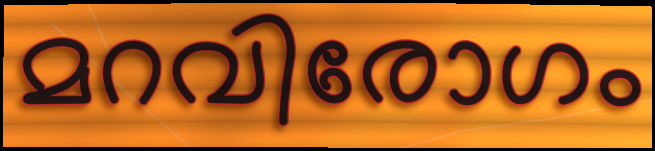
മറവിരോഗം